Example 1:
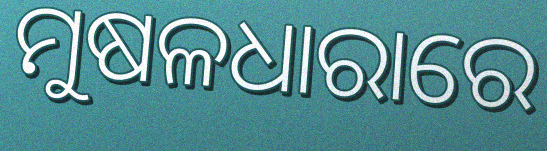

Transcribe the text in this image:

ମୁଷଳଧାରାରେ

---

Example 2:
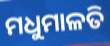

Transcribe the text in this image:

ମଧୁମାଳତି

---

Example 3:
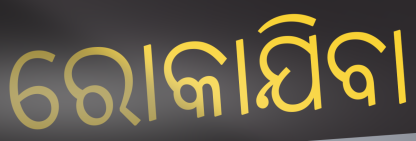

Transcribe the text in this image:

ରୋକାଯିବା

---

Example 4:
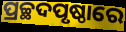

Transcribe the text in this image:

ପ୍ରଚ୍ଛଦପୃଷ୍ଠାରେ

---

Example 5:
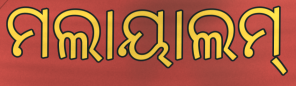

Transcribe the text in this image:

ମଲାୟାଲମ୍